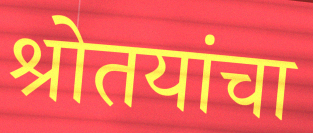
श्रोतयांचा